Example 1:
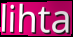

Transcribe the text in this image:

lihta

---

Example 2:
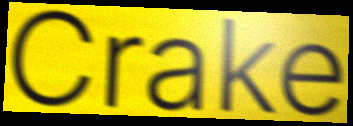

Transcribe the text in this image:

Crake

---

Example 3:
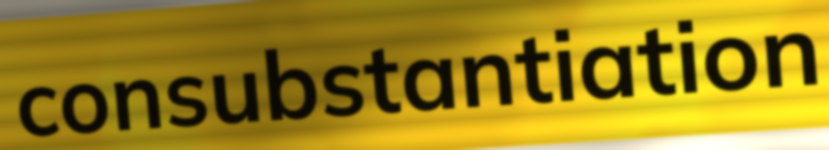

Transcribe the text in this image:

consubstantiation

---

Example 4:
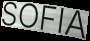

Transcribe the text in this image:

SOFIA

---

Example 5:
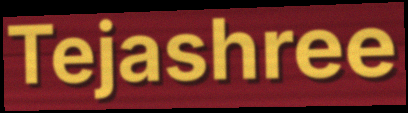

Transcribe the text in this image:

Tejashree